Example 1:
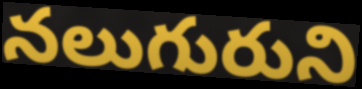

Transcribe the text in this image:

నలుగురుని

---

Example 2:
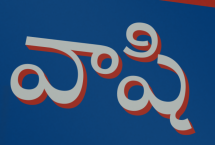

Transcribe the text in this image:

వాషి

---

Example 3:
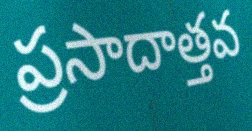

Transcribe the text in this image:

ప్రసాదాత్తవ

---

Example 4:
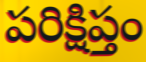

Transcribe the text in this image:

పరిక్షిప్తం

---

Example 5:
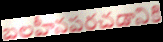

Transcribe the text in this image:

బలహీనపరచడానికి